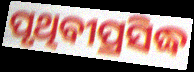
ପୃଥିବୀପ୍ରସିଦ୍ଧ